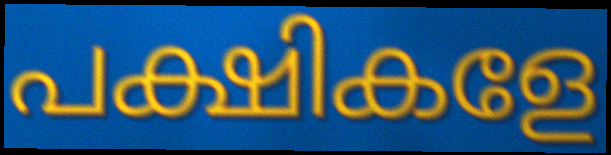
പക്ഷികളേ